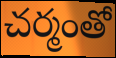
చర్మంతో